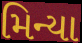
મિન્યા